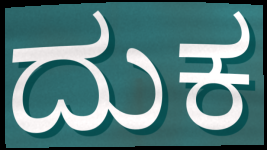
ದುಕ